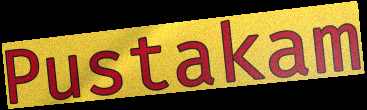
Pustakam